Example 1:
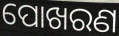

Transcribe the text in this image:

ପୋଖରଣ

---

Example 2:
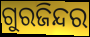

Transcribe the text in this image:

ଗୁରଜିନ୍ଦର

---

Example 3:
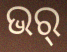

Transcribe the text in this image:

ଭର୍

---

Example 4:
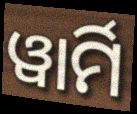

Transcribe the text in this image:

ୱାର୍ମି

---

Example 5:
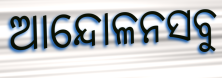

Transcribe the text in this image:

ଆନ୍ଦୋଳନସବୁ